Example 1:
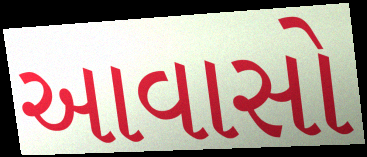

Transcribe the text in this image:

આવાસો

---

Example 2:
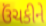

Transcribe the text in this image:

ઉંચકીને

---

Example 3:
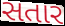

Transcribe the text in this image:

સતાર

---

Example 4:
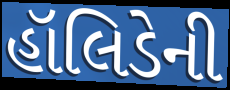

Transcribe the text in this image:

હૉલિડેની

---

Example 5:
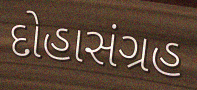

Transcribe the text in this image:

દોહાસંગ્રહ